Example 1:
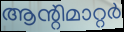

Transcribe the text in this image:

ആന്റിമാറ്റർ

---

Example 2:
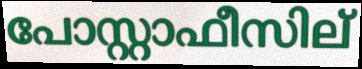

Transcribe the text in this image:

പോസ്റ്റാഫീസില്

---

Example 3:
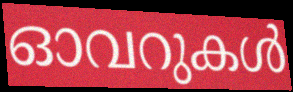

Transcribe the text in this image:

ഓവറുകൾ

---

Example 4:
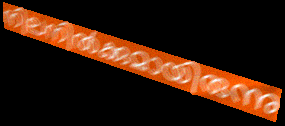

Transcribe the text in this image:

നിലനിൽക്കുമായിരുന്നു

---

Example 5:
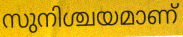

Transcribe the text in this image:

സുനിശ്ചയമാണ്